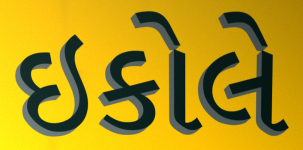
ઇકોલે